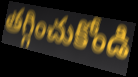
తగ్గించుకోండి